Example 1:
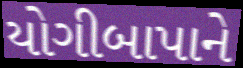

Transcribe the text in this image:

યોગીબાપાને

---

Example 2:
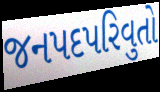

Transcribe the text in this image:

જનપદપરિવુતો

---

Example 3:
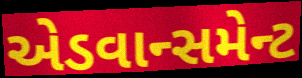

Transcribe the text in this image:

એડવાન્સમેન્ટ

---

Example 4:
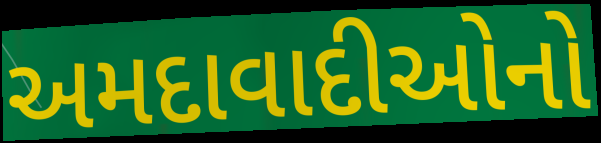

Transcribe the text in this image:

અમદાવાદીઓનો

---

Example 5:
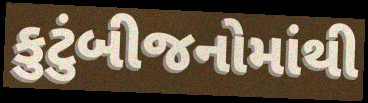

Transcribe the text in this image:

કુટુંબીજનોમાંથી